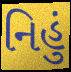
નિહું